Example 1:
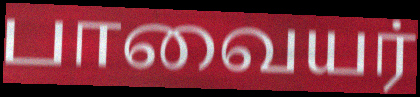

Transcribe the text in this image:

பாவையர்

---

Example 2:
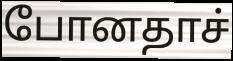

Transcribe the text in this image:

போனதாச்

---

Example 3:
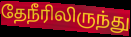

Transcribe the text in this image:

தேநீரிலிருந்து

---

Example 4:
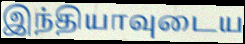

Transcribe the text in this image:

இந்தியாவுடைய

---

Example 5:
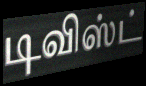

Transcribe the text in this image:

டிவிஸ்ட்